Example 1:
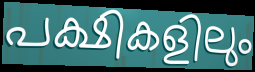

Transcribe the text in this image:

പക്ഷികളിലും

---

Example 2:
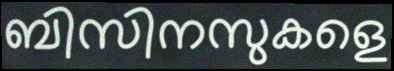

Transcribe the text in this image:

ബിസിനസുകളെ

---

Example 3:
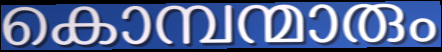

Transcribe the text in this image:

കൊമ്പന്മാരും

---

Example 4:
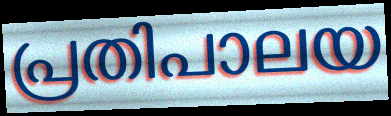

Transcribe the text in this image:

പ്രതിപാലയ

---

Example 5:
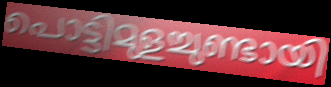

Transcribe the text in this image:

പൊട്ടിമുളച്ചുണ്ടായി